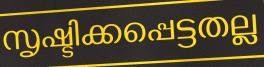
സൃഷ്ടിക്കപ്പെട്ടതല്ല